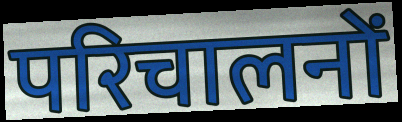
परिचालनों